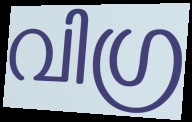
വിഗ്ര